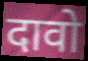
दावो